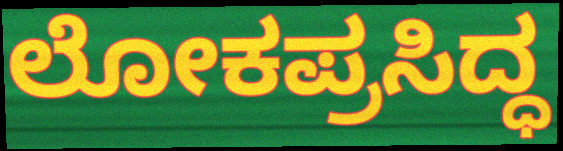
ಲೋಕಪ್ರಸಿದ್ಧ